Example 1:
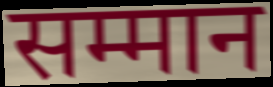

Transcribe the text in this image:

सम्‍मान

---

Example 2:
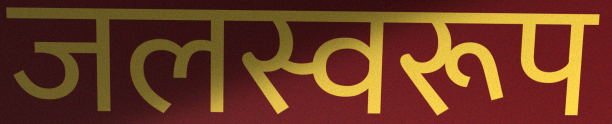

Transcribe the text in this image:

जलस्वरूप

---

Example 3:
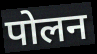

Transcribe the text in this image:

पोलन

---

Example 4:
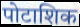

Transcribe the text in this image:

पोटाशिक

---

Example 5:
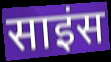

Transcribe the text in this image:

साइंस